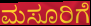
ಮಸೂರಿಗೆ